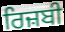
ਰਿਜ਼ਬੀ